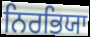
ਨਿਰਭਿਯਾ